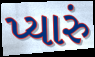
પ્યારું